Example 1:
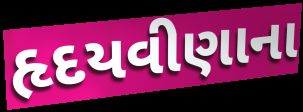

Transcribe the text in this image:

હૃદયવીણાના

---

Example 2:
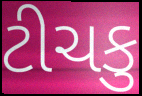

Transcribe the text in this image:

ટીચકુ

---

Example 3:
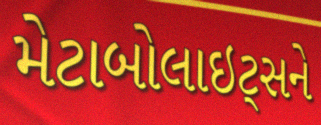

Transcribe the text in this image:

મેટાબોલાઇટ્સને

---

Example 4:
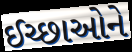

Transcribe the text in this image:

ઈચ્છાઓને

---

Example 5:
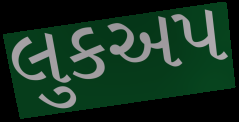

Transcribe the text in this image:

લુકઅપ